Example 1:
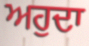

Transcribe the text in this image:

ਅਹੁਦਾ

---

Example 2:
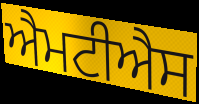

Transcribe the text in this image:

ਐਮਟੀਐਸ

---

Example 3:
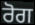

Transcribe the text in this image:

ਰੋਗ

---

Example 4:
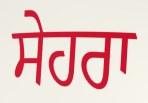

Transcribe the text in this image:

ਸੇਹਰਾ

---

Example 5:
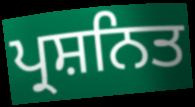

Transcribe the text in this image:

ਪ੍ਰਸ਼ਨਿਤ